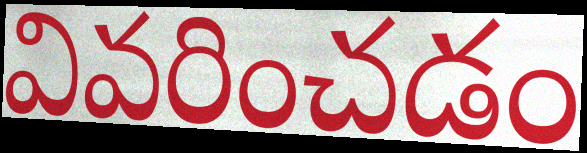
వివరించడం